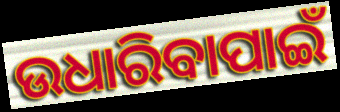
ଉଧାରିବାପାଇଁ